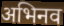
अभिनव